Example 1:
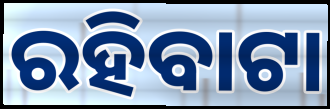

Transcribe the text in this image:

ରହିବାଟା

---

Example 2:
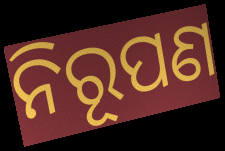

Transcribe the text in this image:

ନିରୂପଣ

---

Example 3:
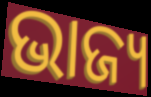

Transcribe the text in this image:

ଭାଜ୍ୟ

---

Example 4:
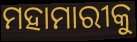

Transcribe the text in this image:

ମହାମାରୀକୁ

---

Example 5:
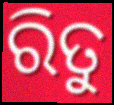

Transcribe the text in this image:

ରିତୁ